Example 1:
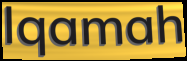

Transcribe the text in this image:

Iqamah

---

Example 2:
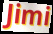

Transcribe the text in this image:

Jimi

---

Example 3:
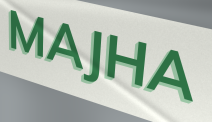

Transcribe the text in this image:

MAJHA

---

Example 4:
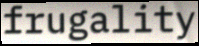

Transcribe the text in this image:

frugality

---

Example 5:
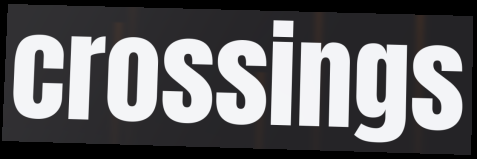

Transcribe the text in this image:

crossings